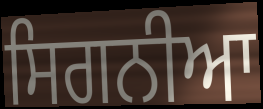
ਸਿਗਨੀਆ